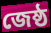
জেষ্ঠ